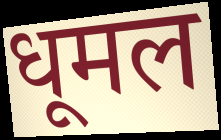
धूमल